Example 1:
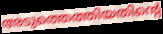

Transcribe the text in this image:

അടുത്തെത്തിയതിന്റെ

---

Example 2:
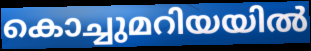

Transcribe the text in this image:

കൊച്ചുമറിയയിൽ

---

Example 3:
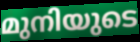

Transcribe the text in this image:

മുനിയുടെ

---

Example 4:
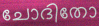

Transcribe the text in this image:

ചോദിതോ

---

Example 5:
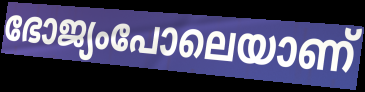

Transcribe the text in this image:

ഭോജ്യംപോലെയാണ്